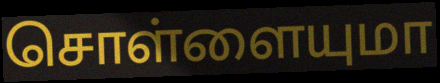
சொள்ளையுமா